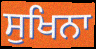
ਸੁਖਿਨਾ